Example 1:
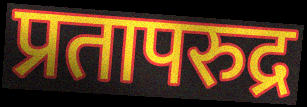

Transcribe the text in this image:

प्रतापरुद्र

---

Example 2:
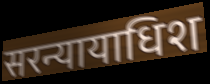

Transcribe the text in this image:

सरन्यायाधिश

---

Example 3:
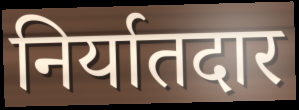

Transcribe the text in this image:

निर्यातदार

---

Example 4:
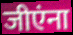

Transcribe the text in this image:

जीएंना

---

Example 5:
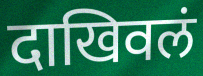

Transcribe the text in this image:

दाखिवलं